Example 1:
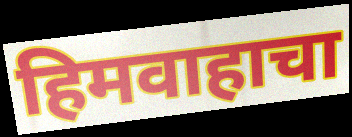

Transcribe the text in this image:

हिमवाहाचा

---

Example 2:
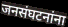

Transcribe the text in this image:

जनसंघटनांना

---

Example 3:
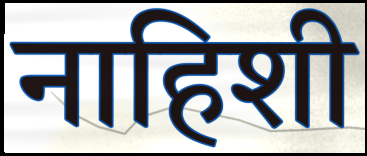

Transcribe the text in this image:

नाहिशी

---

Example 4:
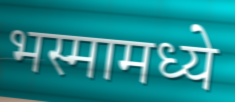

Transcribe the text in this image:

भस्मामध्ये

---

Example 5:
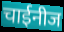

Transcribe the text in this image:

चाईनीज